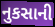
નુકસાની